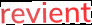
revient